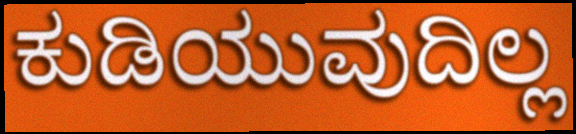
ಕುಡಿಯುವುದಿಲ್ಲ